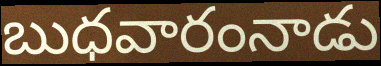
బుధవారంనాడు